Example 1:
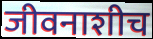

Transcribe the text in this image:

जीवनाशीच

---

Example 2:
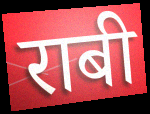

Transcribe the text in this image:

राबी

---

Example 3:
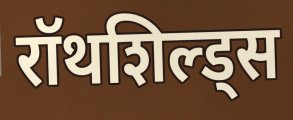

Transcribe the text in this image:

रॉथशिल्ड्स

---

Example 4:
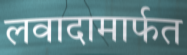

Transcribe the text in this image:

लवादामार्फत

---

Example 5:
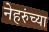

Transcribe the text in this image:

नेहरुंच्या